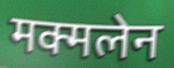
मक्मलेन